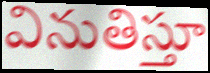
వినుతిస్తూ